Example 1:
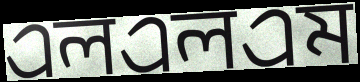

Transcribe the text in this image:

এলএলএম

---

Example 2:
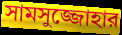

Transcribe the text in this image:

সামসুজ্জোহার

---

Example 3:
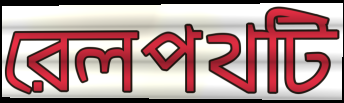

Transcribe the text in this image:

রেলপথটি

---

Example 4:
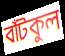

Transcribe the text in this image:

বাঁটকুল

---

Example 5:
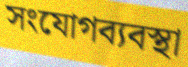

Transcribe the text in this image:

সংযোগব্যবস্থা